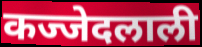
कज्जेदलाली